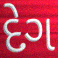
દેગ